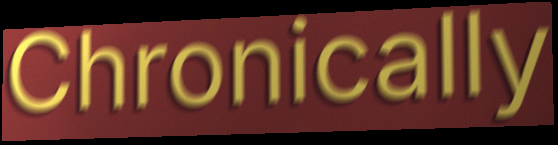
Chronically